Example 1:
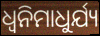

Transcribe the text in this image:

ଧ୍ୱନିମାଧୁର୍ଯ୍ୟ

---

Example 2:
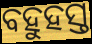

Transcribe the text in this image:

ବହୁହସ୍ତ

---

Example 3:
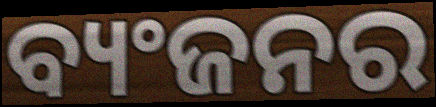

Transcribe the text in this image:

ବ୍ୟଂଜନର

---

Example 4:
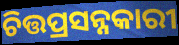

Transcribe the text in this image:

ଚିତ୍ତପ୍ରସନ୍ନକାରୀ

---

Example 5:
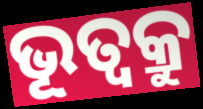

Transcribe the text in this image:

ଭୂତ୍ଵକ୍ରୁ